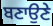
ਬਣਾਉਣੇ